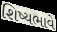
શિષ્યભાવે